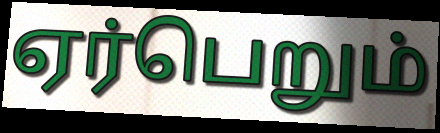
ஏர்பெறும்